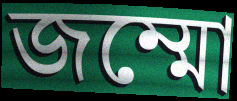
জম্মো